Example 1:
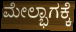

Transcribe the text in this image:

ಮೇಲ್ಭಾಗಕ್ಕೆ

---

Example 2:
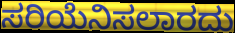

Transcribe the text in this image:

ಸರಿಯೆನಿಸಲಾರದು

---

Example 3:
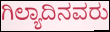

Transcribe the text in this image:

ಗಿಲ್ಯಾದಿನವರು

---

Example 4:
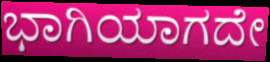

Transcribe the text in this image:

ಭಾಗಿಯಾಗದೇ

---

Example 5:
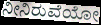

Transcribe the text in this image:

ನೀನಿರುವೆಯೋ